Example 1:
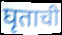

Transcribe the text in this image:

घृताची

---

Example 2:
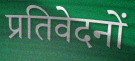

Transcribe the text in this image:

प्रतिवेदनों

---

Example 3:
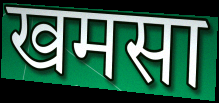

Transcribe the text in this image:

खमसा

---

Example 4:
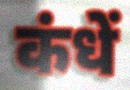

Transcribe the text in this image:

कंधें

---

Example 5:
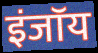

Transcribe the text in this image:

इंजॉय